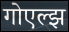
गोएल्झ